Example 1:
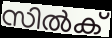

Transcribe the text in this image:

സിൽക്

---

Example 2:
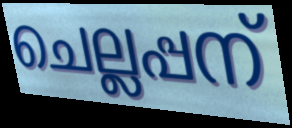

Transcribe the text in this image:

ചെല്ലപ്പന്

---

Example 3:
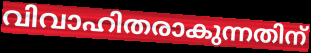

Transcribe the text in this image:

വിവാഹിതരാകുന്നതിന്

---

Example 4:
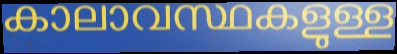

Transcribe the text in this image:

കാലാവസ്ഥകളുള്ള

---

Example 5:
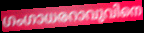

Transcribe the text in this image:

ഗംഗാധരറാവുവിനെ